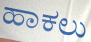
ಹಾಕಲು